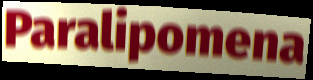
Paralipomena